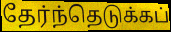
தேர்ந்தெடுக்கப்